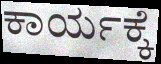
ಕಾರ್ಯಕ್ಕೆ